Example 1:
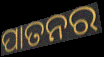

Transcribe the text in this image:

ପାତନର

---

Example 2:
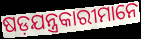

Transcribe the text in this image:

ଷଡ଼ଯନ୍ତ୍ରକାରୀମାନେ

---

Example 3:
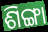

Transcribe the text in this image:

ଶିଙ୍ଗା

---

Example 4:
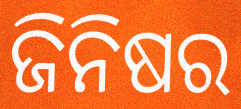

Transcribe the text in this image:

ଜିନିଷର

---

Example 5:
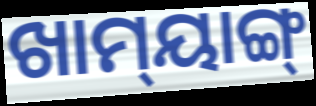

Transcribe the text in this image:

ଖାମ୍‌ୟାଙ୍ଗ୍